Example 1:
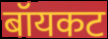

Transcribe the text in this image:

बॉयकट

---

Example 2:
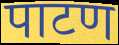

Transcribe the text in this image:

पाटण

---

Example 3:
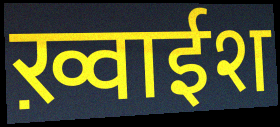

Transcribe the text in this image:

ख़्वाईश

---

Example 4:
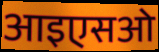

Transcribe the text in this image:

आइएसओ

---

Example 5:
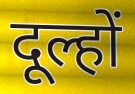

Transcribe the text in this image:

दूल्हों